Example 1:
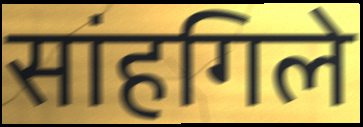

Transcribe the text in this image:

सांहगिले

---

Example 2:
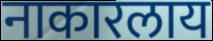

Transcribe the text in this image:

नाकारलाय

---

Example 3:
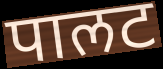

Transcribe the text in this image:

पालट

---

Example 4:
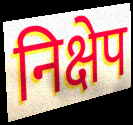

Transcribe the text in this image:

निक्षेप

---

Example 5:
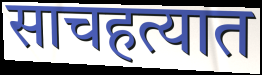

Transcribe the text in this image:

साचहत्यात